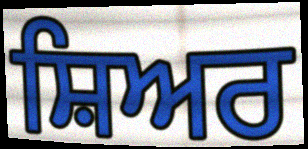
ਸ਼ਿਅਰ